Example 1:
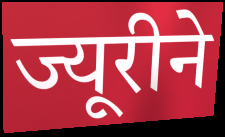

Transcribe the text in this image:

ज्यूरीने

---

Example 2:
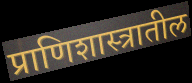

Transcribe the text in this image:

प्राणिशास्त्रातील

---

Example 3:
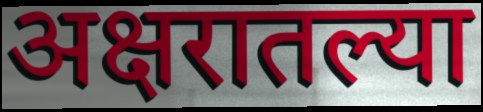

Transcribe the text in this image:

अक्षरातल्या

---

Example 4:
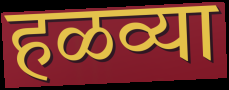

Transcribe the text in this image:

हळव्या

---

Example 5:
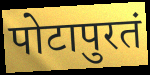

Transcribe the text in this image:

पोटापुरतं